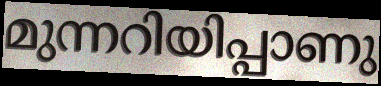
മുന്നറിയിപ്പാണു